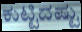
ಕುಟ್ಟಿದಷ್ಟು